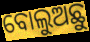
ବୋଲୁଅଛୁ